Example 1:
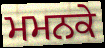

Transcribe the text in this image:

ਮਮਨਕੇ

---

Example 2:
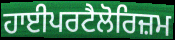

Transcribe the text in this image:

ਹਾਈਪਰਟੈਲੋਰਿਜ਼ਮ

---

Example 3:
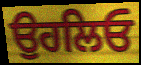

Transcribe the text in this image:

ਉਹਲਿਓ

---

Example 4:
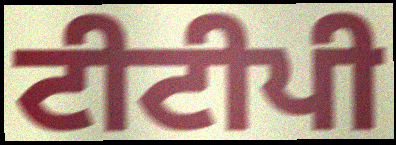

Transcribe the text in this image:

ਟੀਟੀਪੀ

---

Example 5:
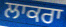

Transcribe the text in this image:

ਲਾਕਰਾ